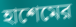
হাশেমের